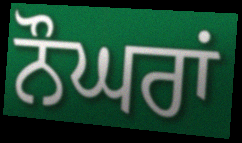
ਨੌਘਰਾਂ